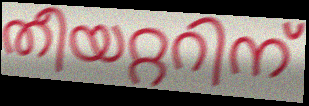
തീയറ്ററിന്